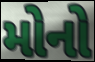
મોનો